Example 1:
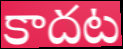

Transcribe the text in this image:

కాదట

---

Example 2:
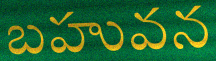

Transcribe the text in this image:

బహువన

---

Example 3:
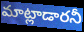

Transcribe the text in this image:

మాట్లాడారనీ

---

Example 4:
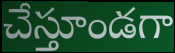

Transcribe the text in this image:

చేస్తూండగా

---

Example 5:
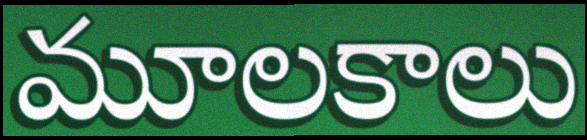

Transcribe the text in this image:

మూలకాలు